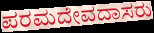
ಪರಮದೇವದಾಸರು